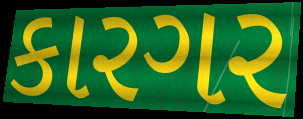
કારગર